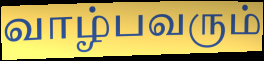
வாழ்பவரும்